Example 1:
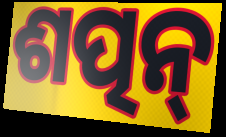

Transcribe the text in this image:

ଶତ୍ପନ୍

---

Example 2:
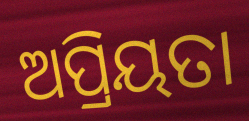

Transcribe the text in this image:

ଅପ୍ରିୟତା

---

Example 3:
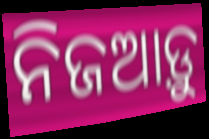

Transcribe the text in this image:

ନିଜଆଡ଼ୁ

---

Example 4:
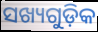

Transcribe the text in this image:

ସଖ୍ୟଗୁଡ଼ିକ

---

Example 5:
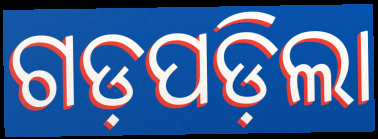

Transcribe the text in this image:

ଗଡ଼ପଡ଼ିଲା